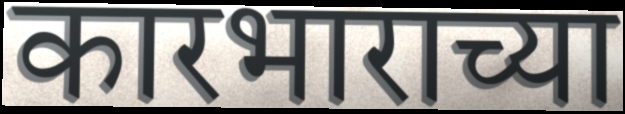
कारभाराच्या